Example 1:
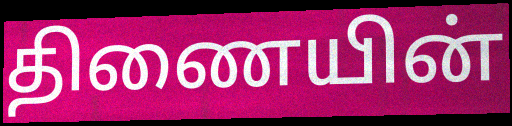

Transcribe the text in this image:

திணையின்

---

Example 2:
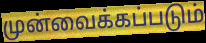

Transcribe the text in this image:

முன்வைக்கப்படும்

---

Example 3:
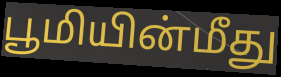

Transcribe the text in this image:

பூமியின்மீது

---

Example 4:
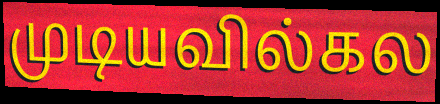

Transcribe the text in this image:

முடியவில்கல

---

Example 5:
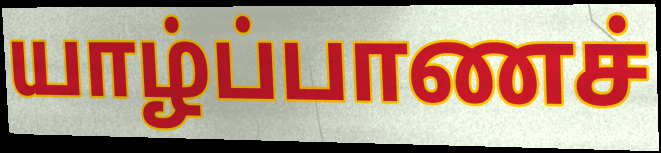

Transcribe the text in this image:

யாழ்ப்பாணச்